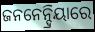
ଜନନେନ୍ଦ୍ରିୟାରେ